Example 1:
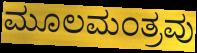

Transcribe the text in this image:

ಮೂಲಮಂತ್ರವು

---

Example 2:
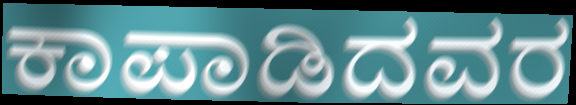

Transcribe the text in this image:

ಕಾಪಾಡಿದವರ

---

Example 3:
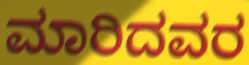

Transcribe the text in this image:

ಮಾರಿದವರ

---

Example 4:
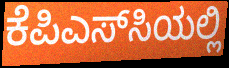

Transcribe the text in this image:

ಕೆಪಿಎಸ್‌ಸಿಯಲ್ಲಿ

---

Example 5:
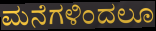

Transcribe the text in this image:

ಮನೆಗಳಿಂದಲೂ